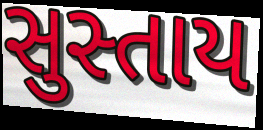
સુસ્તાય